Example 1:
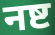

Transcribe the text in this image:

नष्ट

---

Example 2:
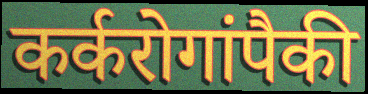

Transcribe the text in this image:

कर्करोगांपैकी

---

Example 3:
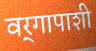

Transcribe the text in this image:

वर्गापाशी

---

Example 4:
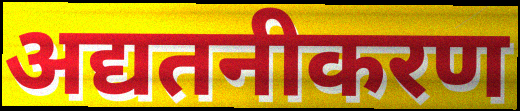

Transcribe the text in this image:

अद्यतनीकरण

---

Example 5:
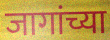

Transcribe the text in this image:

जागांच्या